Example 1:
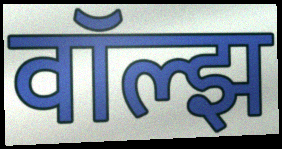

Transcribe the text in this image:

वॉल्झ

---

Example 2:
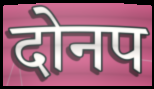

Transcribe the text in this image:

दोनप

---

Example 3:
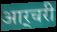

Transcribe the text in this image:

आर्चरी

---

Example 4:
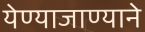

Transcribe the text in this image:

येण्याजाण्याने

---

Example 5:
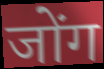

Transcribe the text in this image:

जोंग